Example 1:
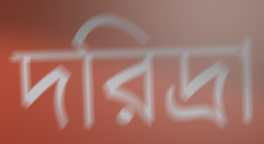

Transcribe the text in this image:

দরিদ্রা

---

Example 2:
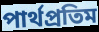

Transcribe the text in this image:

পার্থপ্রতিম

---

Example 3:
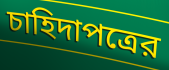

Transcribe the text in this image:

চাহিদাপত্রের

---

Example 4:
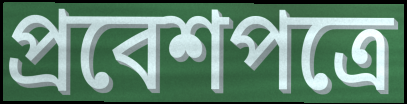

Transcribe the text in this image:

প্রবেশপত্রে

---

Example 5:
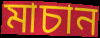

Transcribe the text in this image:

মাচান